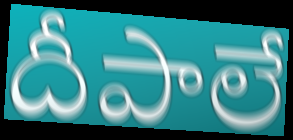
దీపాలే